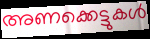
അണക്കെട്ടുകൾ